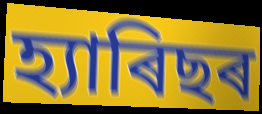
হ্যাৰিছৰ